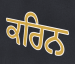
ਕਰਿਨ